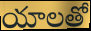
యాలతో